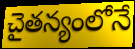
చైతన్యంలోనే